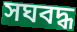
সঘবদ্ধ